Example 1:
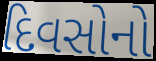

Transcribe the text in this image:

દિવસોનો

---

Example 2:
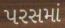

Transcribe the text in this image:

પરસમાં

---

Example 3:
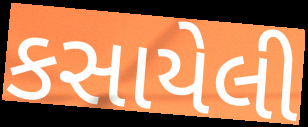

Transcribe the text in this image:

કસાયેલી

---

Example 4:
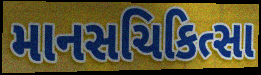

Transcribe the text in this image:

માનસચિકિત્સા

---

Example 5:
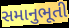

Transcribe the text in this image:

સમાનુભૂતી